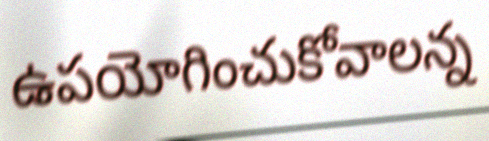
ఉపయోగించుకోవాలన్న